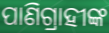
ପାଣିଗ୍ରାହୀଙ୍କ